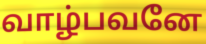
வாழ்பவனே